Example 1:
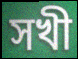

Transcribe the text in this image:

সখী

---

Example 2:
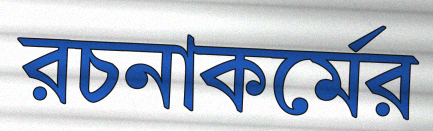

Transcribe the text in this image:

রচনাকর্মের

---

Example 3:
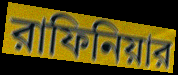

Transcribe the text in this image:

রাফিনিয়ার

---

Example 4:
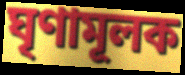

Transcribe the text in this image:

ঘৃণামূলক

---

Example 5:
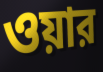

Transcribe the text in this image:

ওয়ার